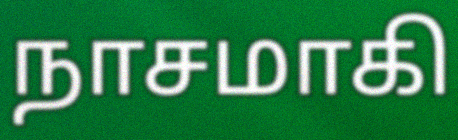
நாசமாகி